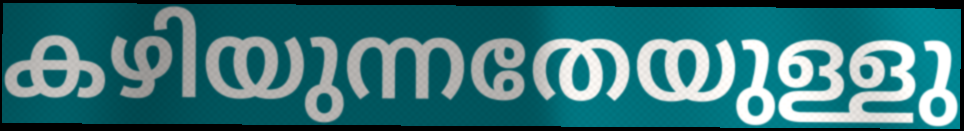
കഴിയുന്നതേയുള്ളു